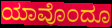
ಯಾವೊಂದೂ